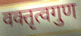
वक्तृत्वगुण